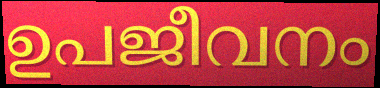
ഉപജീവനം